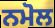
ਨਮੋਲ